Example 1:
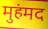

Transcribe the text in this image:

मुहंमद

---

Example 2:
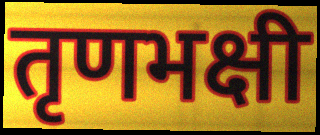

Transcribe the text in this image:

तृणभक्षी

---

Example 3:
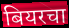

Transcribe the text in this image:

बियरचा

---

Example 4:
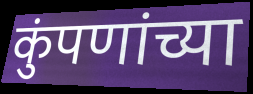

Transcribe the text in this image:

कुंपणांच्या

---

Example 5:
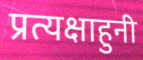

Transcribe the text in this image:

प्रत्यक्षाहुनी